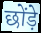
छोंड़े